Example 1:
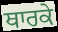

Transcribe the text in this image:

ਥਾਰਕੇ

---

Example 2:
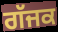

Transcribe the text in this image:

ਗੱਜਕ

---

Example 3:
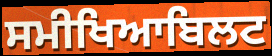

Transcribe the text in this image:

ਸਮੀਖਿਆਬਿਲਟ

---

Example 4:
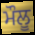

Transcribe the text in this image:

ਮੌਲੂ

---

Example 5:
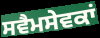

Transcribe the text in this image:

ਸਵੈਮਸੇਵਕਾਂ